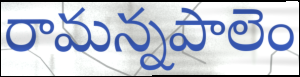
రామన్నపాలెం